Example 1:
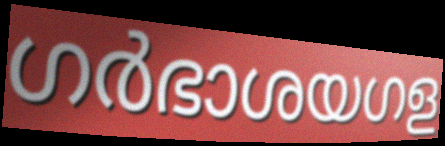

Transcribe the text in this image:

ഗർഭാശയഗള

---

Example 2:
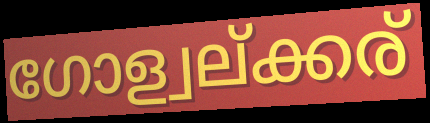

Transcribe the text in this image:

ഗോള്വല്ക്കര്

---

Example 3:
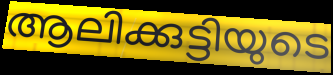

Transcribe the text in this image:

ആലിക്കുട്ടിയുടെ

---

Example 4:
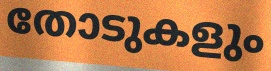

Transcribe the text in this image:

തോടുകളും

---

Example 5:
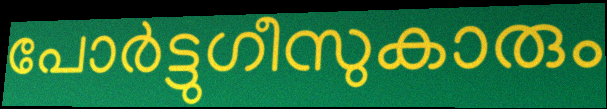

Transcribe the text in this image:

പോർട്ടുഗീസുകാരും